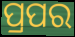
ପ୍ରପର